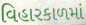
વિહારકાળમાં